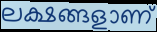
ലക്ഷങ്ങളാണ്